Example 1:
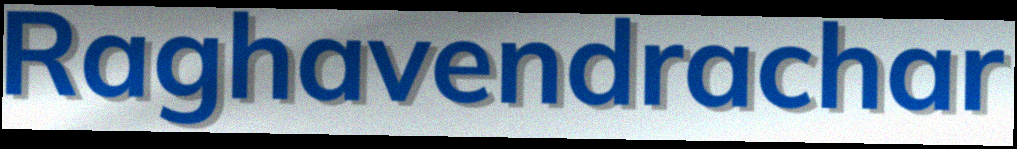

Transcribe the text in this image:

Raghavendrachar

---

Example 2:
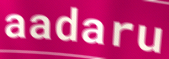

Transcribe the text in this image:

aadaru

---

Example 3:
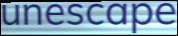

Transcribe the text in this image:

unescape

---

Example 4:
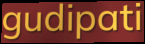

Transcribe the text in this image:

gudipati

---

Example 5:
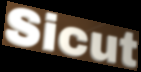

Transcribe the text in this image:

Sicut